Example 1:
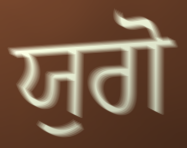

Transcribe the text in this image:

ਯੁਗੋ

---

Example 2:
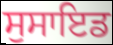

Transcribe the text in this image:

ਸੁਸਾਇਡ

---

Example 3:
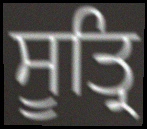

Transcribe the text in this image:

ਸੂਤ੍ਰਿ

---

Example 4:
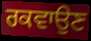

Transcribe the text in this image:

ਰਕਵਾਉਣ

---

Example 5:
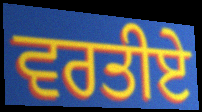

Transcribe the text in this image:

ਵਰਤੀਏ